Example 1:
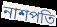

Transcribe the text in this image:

নাশপতি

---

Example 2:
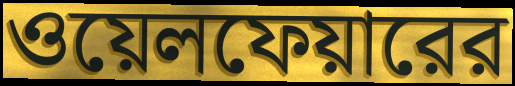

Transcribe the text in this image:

ওয়েলফেয়ারের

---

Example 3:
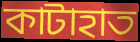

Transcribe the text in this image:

কাটাহাত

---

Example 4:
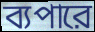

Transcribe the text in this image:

ব্যপারে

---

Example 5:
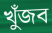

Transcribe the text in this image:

খুঁজব